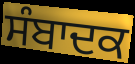
ਸੰਬਾਦਕ